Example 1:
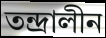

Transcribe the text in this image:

তন্দ্রালীন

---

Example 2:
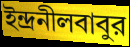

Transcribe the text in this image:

ইন্দ্রনীলবাবুর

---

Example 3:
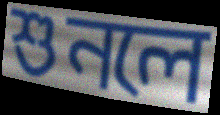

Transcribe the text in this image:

শুনলে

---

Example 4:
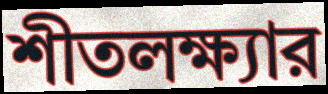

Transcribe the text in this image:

শীতলক্ষ্যার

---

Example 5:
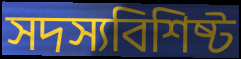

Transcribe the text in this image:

সদস্যবিশিষ্ট